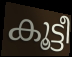
കൂട്ടീ